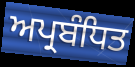
ਅਪ੍ਰਬੰਧਿਤ